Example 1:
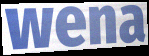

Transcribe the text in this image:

wena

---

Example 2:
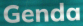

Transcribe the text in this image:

Genda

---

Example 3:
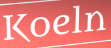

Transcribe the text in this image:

Koeln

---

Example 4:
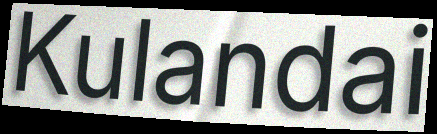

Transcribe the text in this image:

Kulandai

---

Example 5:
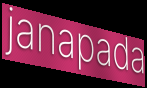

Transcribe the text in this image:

janapada